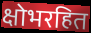
क्षोभरहित